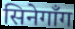
सिनेगाँग